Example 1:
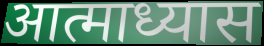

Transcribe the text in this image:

आत्माध्यास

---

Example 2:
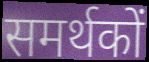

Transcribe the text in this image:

समर्थकों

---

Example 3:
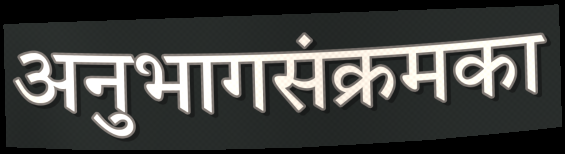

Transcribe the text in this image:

अनुभागसंक्रमका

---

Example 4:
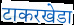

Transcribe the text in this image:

टाकरखेडा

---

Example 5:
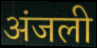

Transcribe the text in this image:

अंजली